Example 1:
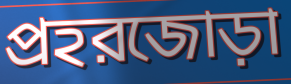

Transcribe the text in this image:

প্রহরজোড়া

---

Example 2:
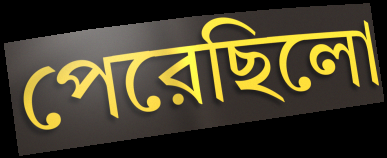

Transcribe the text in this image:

পেরেছিলো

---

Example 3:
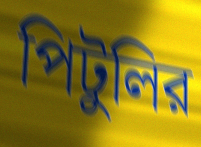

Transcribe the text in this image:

পিটুলির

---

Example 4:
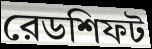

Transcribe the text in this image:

রেডশিফট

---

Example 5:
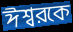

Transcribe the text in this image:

ঈশ্বরকে